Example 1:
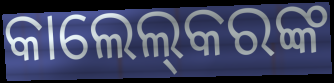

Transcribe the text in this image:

କାଲେଲ୍‌କରଙ୍କ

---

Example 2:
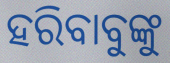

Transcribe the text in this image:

ହରିବାବୁଙ୍କୁ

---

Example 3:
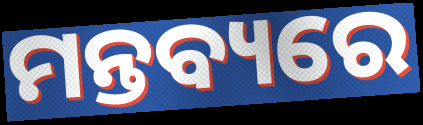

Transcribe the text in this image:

ମନ୍ତବ୍ୟରେ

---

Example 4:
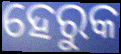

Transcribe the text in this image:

ହେରୁକ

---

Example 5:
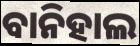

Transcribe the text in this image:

ବାନିହାଲ